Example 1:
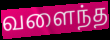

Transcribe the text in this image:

வளைந்த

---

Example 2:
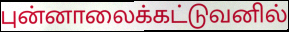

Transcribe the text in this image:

புன்னாலைக்கட்டுவனில்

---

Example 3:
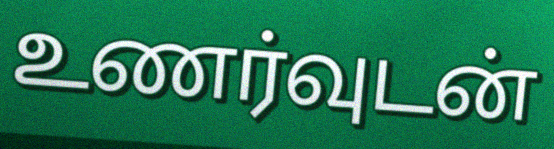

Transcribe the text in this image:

உணர்வுடன்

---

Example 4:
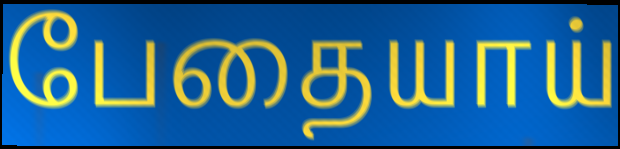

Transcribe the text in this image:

பேதையாய்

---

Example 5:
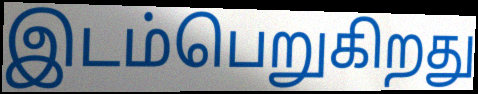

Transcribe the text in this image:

இடம்பெறுகிறது